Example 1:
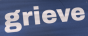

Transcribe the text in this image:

grieve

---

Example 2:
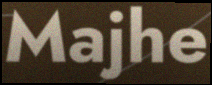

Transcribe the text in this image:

Majhe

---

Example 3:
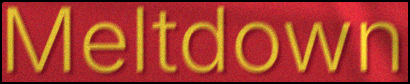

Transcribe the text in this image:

Meltdown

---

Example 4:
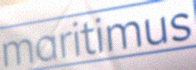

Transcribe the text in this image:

maritimus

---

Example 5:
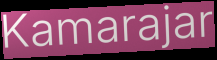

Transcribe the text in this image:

Kamarajar